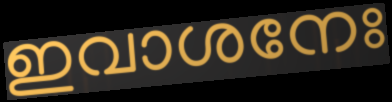
ഇവാശനേഃ